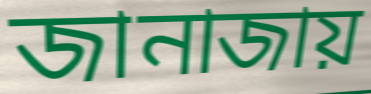
জানাজায়